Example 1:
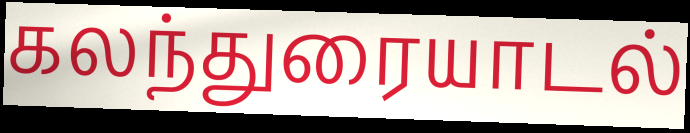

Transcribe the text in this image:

கலந்துரையாடல்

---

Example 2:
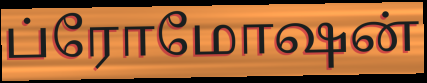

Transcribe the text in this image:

ப்ரோமோஷன்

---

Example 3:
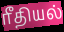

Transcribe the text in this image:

ரீதியல்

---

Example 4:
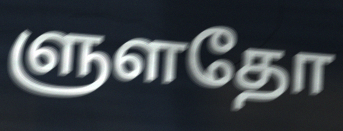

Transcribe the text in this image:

ளுளதோ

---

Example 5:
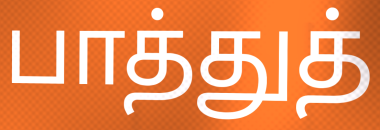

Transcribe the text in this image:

பாத்துத்